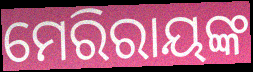
ମେରିରାୟଙ୍କ